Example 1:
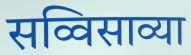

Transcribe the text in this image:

सव्विसाव्या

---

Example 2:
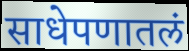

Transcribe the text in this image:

साधेपणातलं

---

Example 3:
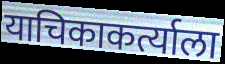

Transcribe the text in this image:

याचिकाकर्त्याला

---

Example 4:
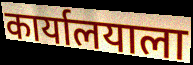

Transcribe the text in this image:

कार्यालयाला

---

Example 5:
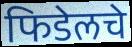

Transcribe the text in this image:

फिडेलचे